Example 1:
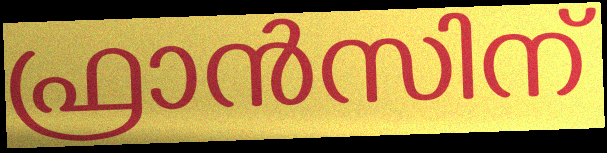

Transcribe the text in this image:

ഫ്രാൻസിന്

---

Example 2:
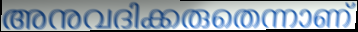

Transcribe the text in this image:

അനുവദിക്കരുതെന്നാണ്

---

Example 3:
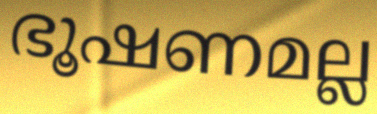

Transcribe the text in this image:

ഭൂഷണമല്ല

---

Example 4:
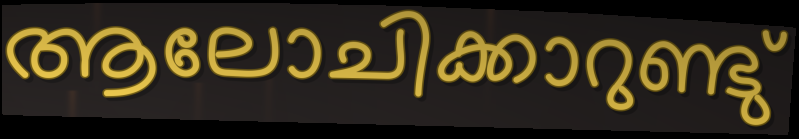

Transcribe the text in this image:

ആലോചിക്കാറുണ്ടു്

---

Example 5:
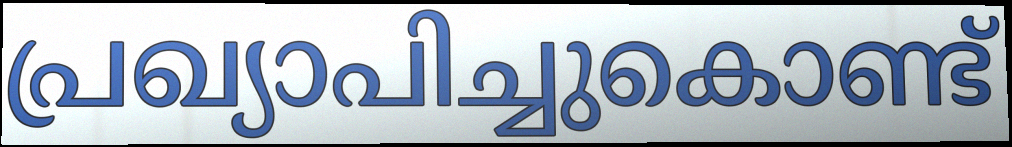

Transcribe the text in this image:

പ്രഖ്യാപിച്ചുകൊണ്ട്